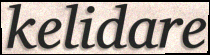
kelidare